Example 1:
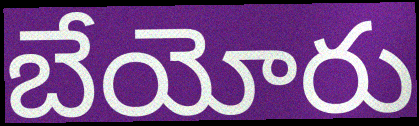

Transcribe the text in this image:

బేయోరు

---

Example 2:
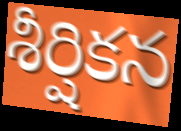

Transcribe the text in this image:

శీర్షికన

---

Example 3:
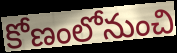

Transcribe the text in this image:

కోణంలోనుంచి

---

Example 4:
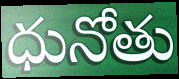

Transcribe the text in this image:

ధునోతు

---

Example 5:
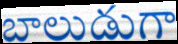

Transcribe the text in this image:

బాలుడుగా